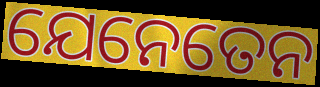
ଯେନେତେନ